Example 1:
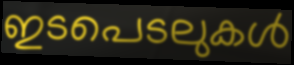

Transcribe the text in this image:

ഇടപെടലുകൾ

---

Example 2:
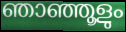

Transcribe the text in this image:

ഞാഞ്ഞൂളും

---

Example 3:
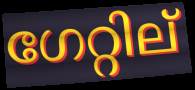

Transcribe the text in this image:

ഗേറ്റില്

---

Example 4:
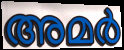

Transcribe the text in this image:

അമർ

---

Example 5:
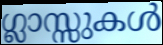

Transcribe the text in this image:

ഗ്ലാസ്സുകൾ